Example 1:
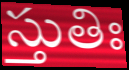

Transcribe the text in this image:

స్తుతిః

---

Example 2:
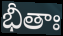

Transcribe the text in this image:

భీతాః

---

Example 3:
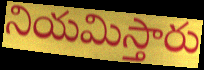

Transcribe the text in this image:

నియమిస్తారు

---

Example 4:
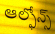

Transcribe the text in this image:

ఆల్ఫోన్స్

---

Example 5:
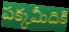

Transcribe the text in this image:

పక్కమీదికి